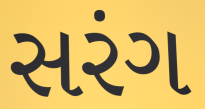
સરંગ